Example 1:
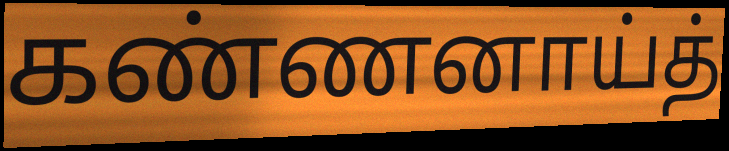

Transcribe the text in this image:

கண்ணனாய்த்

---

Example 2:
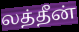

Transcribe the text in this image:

லத்தீன்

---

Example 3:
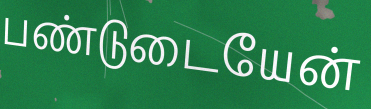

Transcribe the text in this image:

பண்டுடையேன்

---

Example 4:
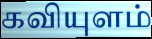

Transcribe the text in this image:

கவியுளம்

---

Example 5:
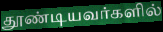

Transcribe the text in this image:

தூண்டியவர்களில்